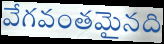
వేగవంతమైనది